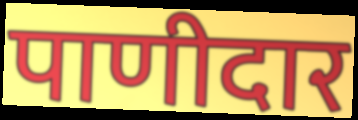
पाणीदार